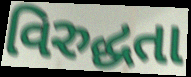
વિરુદ્ધતા